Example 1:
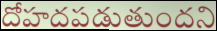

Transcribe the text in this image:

దోహదపడుతుందని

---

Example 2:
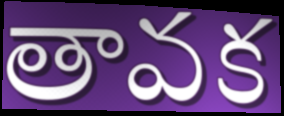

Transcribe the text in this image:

తావక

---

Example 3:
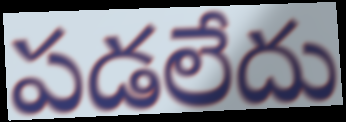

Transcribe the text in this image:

పడలేదు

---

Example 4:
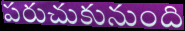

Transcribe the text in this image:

పరుచుకునుంది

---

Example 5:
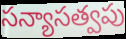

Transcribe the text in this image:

సన్యాసత్వపు